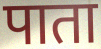
पाता